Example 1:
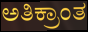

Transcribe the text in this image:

ಅತಿಕ್ರಾಂತ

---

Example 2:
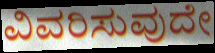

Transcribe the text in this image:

ವಿವರಿಸುವುದೇ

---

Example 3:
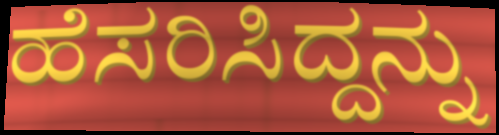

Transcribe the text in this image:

ಹೆಸರಿಸಿದ್ದನ್ನು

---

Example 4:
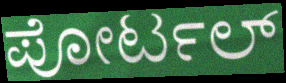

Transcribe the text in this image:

ಪೋರ್ಟಲ್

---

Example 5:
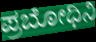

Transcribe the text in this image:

ಪ್ರಬೋಧಿನಿ